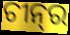
ଚୀନ୍‌ର